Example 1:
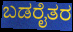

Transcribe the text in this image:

ಬಡರೈತರ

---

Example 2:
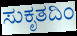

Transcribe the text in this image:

ಸುಕೃತದಿಂ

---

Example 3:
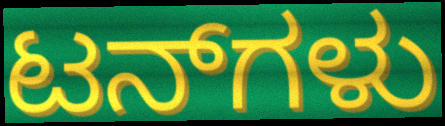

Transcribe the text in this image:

ಟನ್‌ಗಳು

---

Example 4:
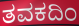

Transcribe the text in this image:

ತವಕದಿಂ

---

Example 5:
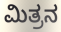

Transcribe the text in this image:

ಮಿತ್ರನ